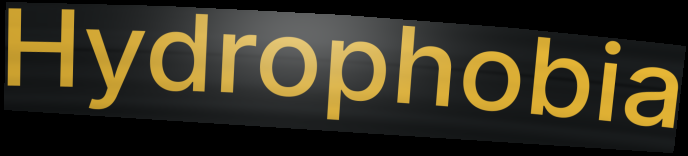
Hydrophobia